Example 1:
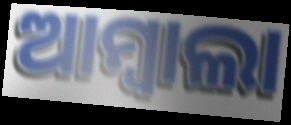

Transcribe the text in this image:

ଆମ୍ବାଲା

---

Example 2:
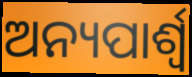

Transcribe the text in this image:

ଅନ୍ୟପାର୍ଶ୍ୱ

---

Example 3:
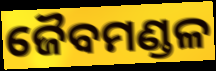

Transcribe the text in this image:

ଜୈବମଣ୍ଡଳ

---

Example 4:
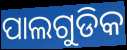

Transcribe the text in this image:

ପାଲଗୁଡିକ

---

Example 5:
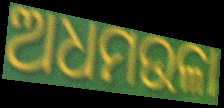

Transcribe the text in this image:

ଅଧମଉଳା